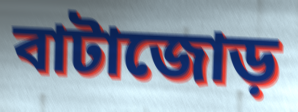
বাটাজোড়